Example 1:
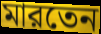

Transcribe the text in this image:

মারতেন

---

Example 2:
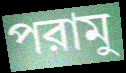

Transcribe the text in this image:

পরামু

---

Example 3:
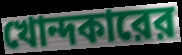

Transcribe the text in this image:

খোন্দকারের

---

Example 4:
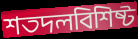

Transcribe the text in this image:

শতদলবিশিষ্ট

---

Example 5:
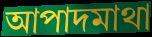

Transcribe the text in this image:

আপাদমাথা